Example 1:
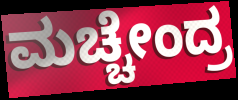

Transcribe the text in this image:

ಮಚ್ಚೇಂದ್ರ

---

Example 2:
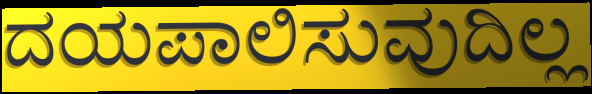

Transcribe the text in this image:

ದಯಪಾಲಿಸುವುದಿಲ್ಲ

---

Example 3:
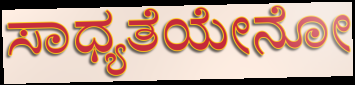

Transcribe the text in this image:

ಸಾಧ್ಯತೆಯೇನೋ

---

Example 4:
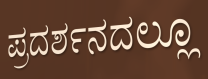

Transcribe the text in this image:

ಪ್ರದರ್ಶನದಲ್ಲೂ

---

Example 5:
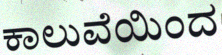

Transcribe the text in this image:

ಕಾಲುವೆಯಿಂದ